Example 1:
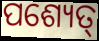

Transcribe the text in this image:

ପଶ୍ୟେତ୍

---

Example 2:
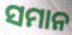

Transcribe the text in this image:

ସମାନ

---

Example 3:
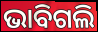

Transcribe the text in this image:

ଭାବିଗଲି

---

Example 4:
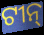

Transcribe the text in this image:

ଟୀନ୍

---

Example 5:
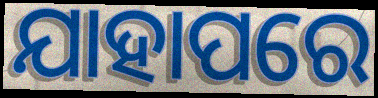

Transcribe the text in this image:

ଯାହାପରେ